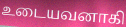
உடையவனாகி